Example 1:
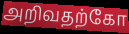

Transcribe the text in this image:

அறிவதற்கோ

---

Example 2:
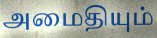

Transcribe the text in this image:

அமைதியும்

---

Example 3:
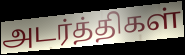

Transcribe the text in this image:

அடர்த்திகள்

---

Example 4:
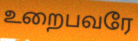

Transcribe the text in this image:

உறைபவரே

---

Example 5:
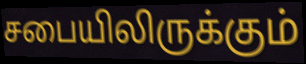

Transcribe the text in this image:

சபையிலிருக்கும்